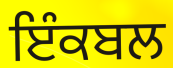
ਇੰਕਬਲ